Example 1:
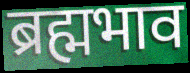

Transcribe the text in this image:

ब्रह्मभाव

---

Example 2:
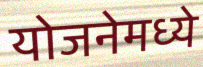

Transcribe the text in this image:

योजनेमध्ये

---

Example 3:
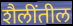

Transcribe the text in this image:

शैलींतील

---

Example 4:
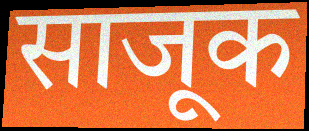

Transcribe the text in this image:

साजूक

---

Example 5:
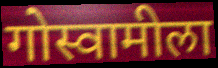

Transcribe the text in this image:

गोस्वामीला